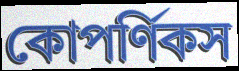
কোপর্ণিকস